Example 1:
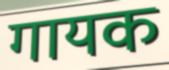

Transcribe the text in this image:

गायक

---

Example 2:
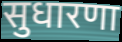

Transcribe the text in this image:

सुधारणा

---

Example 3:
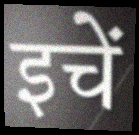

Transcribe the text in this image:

इचें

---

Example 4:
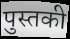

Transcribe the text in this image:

पुस्तकी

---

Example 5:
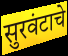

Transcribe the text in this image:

सुरवंटाचे